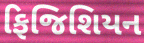
ફિજિશિયન